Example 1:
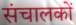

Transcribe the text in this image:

संचालकों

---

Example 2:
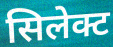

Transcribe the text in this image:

सिलेक्ट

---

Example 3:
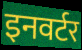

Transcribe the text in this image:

इनवर्टर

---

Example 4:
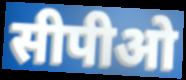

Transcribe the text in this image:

सीपीओ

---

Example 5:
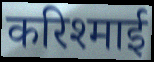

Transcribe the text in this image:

करिश्माई